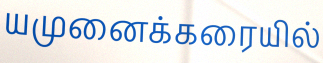
யமுனைக்கரையில்